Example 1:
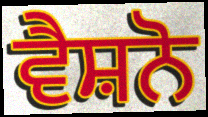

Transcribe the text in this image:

ਵੈਸ਼ਨੋ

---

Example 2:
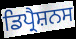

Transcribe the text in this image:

ਡਿਪ੍ਰੈਸ਼ਨਸ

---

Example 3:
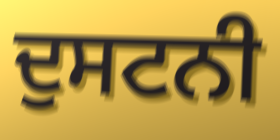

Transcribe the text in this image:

ਦੁਸਟਨੀ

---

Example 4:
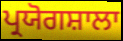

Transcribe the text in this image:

ਪ੍ਰਯੋਗਸ਼ਾਲਾ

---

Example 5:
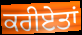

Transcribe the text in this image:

ਕਰੀਏਤਾਂ